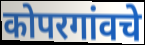
कोपरगांवचे